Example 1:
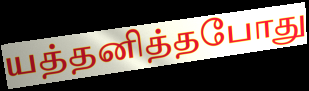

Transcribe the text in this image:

யத்தனித்தபோது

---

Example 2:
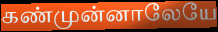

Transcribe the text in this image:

கண்முன்னாலேயே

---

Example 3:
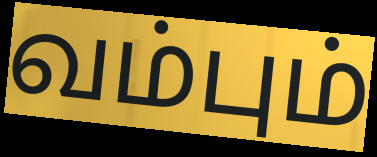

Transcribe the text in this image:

வம்பும்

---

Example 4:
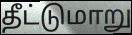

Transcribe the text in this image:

தீட்டுமாறு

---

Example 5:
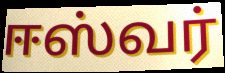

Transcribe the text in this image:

ஈஸ்வர்